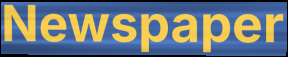
Newspaper